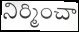
నిర్మించా